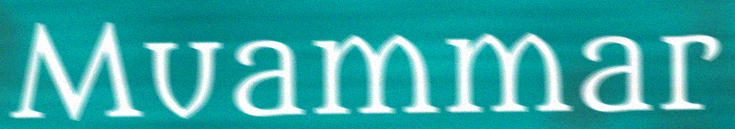
Muammar